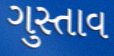
ગુસ્તાવ